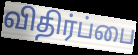
விதிர்ப்பை